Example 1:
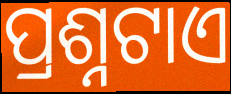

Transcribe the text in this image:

ପ୍ରଶ୍ନଟାଏ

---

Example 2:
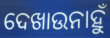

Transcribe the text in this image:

ଦେଖାଉନାହୁଁ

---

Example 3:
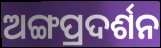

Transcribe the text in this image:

ଅଙ୍ଗପ୍ରଦର୍ଶନ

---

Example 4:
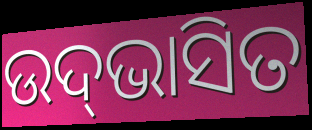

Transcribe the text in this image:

ଉଦ୍‌ଭାସିତ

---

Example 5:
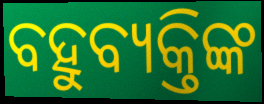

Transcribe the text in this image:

ବହୁବ୍ୟକ୍ତିଙ୍କ